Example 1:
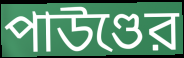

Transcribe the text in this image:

পাউণ্ডের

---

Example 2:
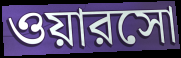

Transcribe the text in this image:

ওয়ারসো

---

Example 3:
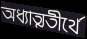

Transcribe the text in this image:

অধ্যাত্মতীর্থে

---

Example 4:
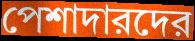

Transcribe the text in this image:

পেশাদারদের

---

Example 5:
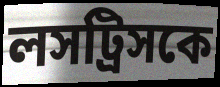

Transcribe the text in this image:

লসট্রিসকে